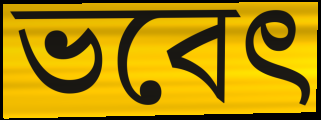
ভবেৎ